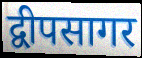
द्वीपसागर